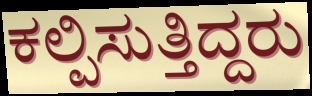
ಕಲ್ಪಿಸುತ್ತಿದ್ದರು